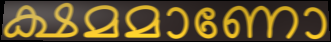
ക്ഷമമാണോ